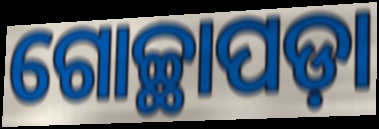
ଗୋଚ୍ଛାପଡ଼ା